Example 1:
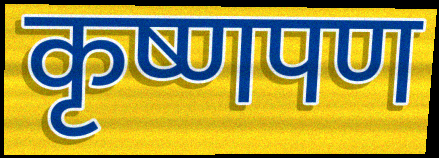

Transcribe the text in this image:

कृष्णपण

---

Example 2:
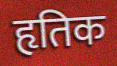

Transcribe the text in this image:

हृतिक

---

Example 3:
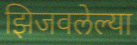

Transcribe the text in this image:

झिजवलेल्या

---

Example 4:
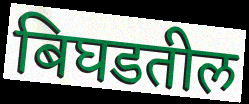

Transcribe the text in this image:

बिघडतील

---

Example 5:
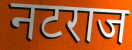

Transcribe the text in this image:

नटराज